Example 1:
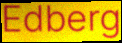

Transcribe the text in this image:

Edberg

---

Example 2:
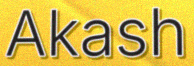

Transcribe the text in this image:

Akash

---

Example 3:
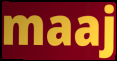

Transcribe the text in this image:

maaj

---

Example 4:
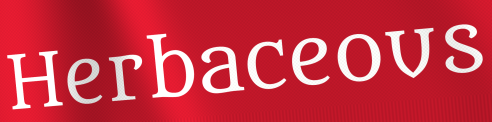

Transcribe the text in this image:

Herbaceous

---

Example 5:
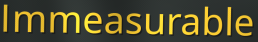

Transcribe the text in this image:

Immeasurable